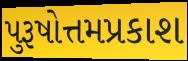
પુરૂષોત્તમપ્રકાશ